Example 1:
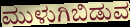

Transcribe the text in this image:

ಮುಳುಗಿಬಿಡುವ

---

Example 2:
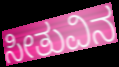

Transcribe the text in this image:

ಸೀತುವಿನ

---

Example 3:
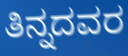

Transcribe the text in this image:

ತಿನ್ನದವರ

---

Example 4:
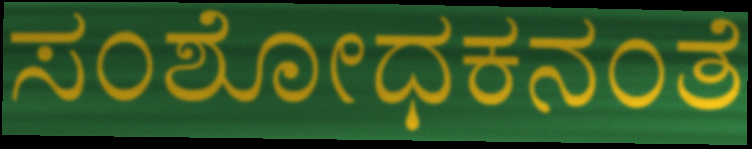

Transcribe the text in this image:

ಸಂಶೋಧಕನಂತೆ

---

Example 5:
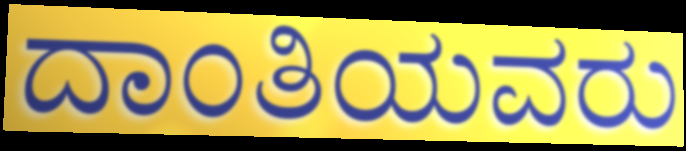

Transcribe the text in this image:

ದಾಂತಿಯವರು